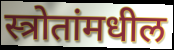
स्त्रोतांमधील